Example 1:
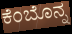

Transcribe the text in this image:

ಕೆಂಬೊನ್ನ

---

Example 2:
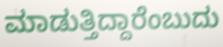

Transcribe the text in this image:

ಮಾಡುತ್ತಿದ್ದಾರೆಂಬುದು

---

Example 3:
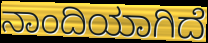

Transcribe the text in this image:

ನಾಂದಿಯಾಗಿದೆ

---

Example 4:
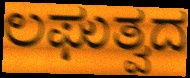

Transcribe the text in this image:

ಲಘುತ್ವದ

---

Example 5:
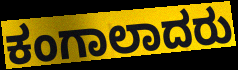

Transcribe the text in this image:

ಕಂಗಾಲಾದರು